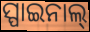
ସ୍ପାଇନାଲ୍